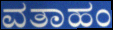
ವತಾಹಂ